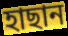
হাছান